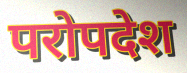
परोपदेश